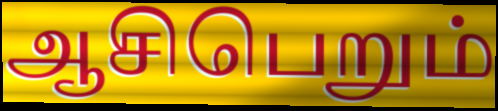
ஆசிபெறும்